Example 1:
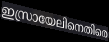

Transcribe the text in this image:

ഇസ്രായേലിനെതിരെ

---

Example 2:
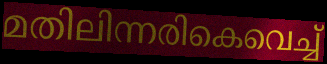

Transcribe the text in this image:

മതിലിന്നരികെവെച്ച്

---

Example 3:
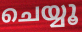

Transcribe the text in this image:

ചെയ്യൂ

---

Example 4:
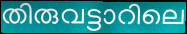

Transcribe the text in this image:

തിരുവട്ടാറിലെ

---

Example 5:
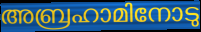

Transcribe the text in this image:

അബ്രഹാമിനോടു